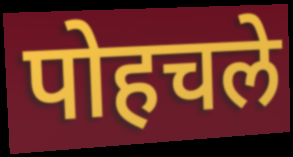
पोहचले